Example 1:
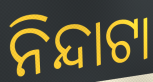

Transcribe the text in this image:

ନିନ୍ଦାଟା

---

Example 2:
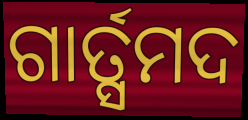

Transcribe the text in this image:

ଗାର୍ତ୍ସମଦ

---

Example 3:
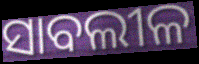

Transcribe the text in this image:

ସାବଲୀଳ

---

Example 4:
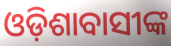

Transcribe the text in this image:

ଓଡ଼ିଶାବାସୀଙ୍କ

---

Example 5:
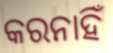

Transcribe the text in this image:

କରନାହିଁ